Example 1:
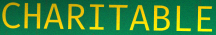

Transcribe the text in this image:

CHARITABLE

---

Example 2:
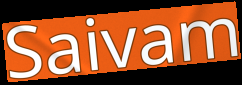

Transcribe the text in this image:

Saivam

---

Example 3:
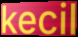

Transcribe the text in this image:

kecil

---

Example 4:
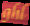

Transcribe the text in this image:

ghl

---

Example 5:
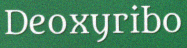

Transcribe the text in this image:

Deoxyribo